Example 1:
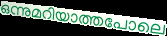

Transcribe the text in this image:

ഒന്നുമറിയാത്തപോലെ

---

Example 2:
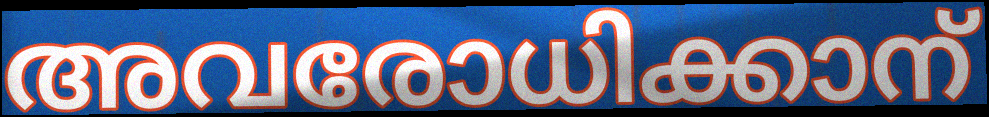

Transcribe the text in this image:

അവരോധിക്കാന്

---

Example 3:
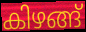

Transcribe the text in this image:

കിഴങ്ങ്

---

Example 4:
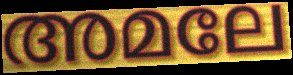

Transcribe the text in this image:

അമലേ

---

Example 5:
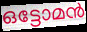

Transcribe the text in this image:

ഒട്ടോമൻ